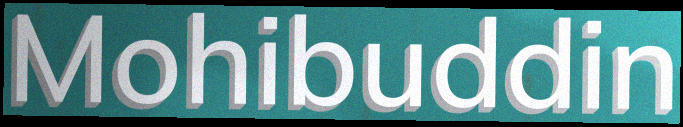
Mohibuddin